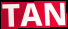
TAN